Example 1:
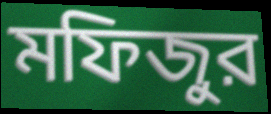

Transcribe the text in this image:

মফিজুর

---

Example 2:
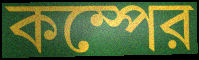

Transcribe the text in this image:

কম্পের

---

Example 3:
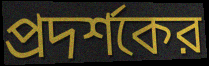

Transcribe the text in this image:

প্রদর্শকের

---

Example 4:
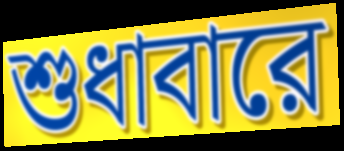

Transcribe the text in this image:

শুধাবারে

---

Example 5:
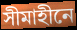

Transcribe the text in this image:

সীমাহীনে